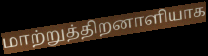
மாற்றுத்திறனாளியாக